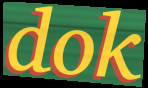
dok